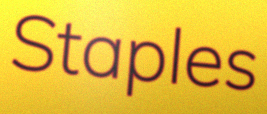
Staples